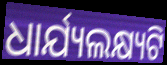
ଧାର୍ଯ୍ୟଲକ୍ଷ୍ୟଟି